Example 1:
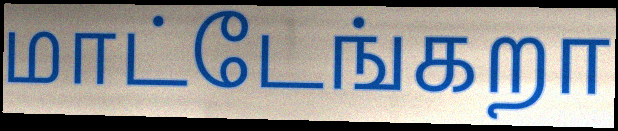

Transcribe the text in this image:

மாட்டேங்கறா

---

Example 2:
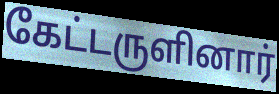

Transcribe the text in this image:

கேட்டருளினார்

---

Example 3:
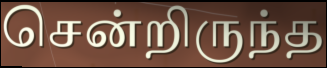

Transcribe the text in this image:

சென்றிருந்த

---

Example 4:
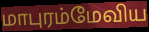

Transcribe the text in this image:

மாபுரம்மேவிய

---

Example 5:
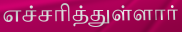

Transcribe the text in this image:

எச்சரித்துள்ளார்